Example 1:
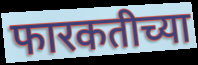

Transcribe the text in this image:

फारकतीच्या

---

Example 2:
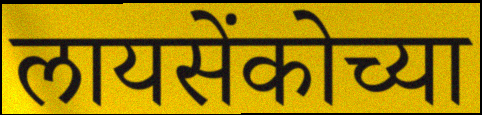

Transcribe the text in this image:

लायसेंकोच्या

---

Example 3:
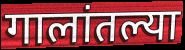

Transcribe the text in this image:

गालांतल्या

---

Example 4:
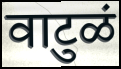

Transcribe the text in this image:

वाटुळं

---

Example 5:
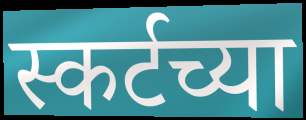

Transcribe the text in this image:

स्कर्टच्या